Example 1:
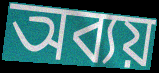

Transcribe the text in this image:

অব্যয়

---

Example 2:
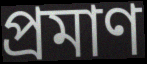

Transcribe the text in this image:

প্ৰমাণ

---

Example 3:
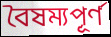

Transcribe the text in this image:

বৈষম্যপূৰ্ণ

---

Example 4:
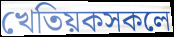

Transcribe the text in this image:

খেতিয়কসকলে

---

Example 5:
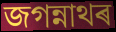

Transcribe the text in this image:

জগন্নাথৰ